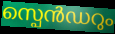
സ്പെൻഡറും